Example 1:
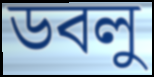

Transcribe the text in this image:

ডবলু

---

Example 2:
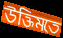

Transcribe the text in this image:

উক্তিমতে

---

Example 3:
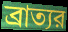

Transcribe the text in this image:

ব্রাত্যর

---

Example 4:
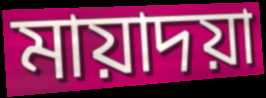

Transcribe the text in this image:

মায়াদয়া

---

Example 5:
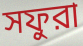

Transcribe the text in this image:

সফুরা